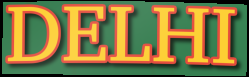
DELHI